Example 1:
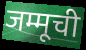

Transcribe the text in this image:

जम्मूची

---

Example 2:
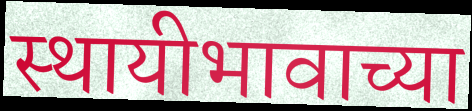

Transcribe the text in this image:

स्थायीभावाच्या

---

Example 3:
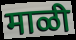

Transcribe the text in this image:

माळी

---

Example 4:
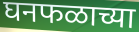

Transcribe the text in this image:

घनफळाच्या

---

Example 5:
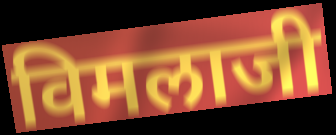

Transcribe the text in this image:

विमलाजी